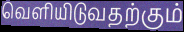
வெளியிடுவதற்கும்